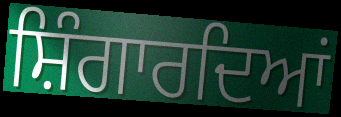
ਸ਼ਿੰਗਾਰਦਿਆਂ